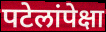
पटेलांपेक्षा